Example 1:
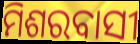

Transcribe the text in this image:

ମିଶରବାସୀ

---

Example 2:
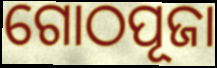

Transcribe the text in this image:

ଗୋଠପୂଜା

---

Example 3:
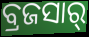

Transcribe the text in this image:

ବ୍ରଜସାର୍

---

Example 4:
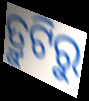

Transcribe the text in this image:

ତ୍ରୁଟିରୁ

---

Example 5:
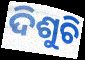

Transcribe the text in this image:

ଦିଶୁଚି